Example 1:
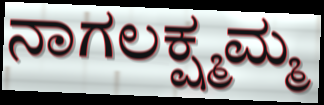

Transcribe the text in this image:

ನಾಗಲಕ್ಷ್ಮಮ್ಮ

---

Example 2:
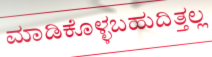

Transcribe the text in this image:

ಮಾಡಿಕೊಳ್ಳಬಹುದಿತ್ತಲ್ಲ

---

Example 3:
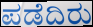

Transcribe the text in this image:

ಪಡೆದಿರು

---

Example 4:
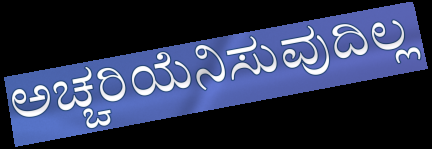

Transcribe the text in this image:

ಅಚ್ಚರಿಯೆನಿಸುವುದಿಲ್ಲ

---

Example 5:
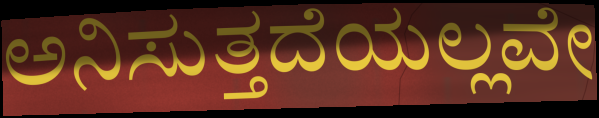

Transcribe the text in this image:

ಅನಿಸುತ್ತದೆಯಲ್ಲವೇ